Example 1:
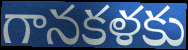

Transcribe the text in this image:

గానకళకు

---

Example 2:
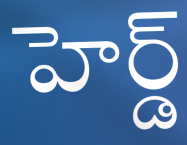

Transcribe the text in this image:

హెర్డ్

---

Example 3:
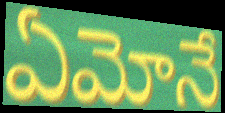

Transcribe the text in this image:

ఏమోనే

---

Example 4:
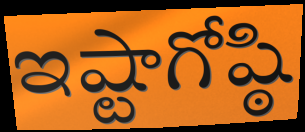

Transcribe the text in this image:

ఇష్టాగోష్ఠి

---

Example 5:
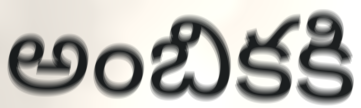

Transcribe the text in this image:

అంబికకి